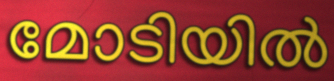
മോടിയിൽ